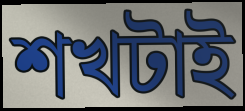
শখটাই